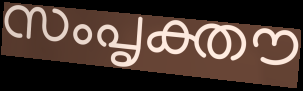
സംപൃക്തൗ